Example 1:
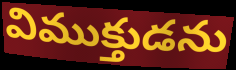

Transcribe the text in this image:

విముక్తుడను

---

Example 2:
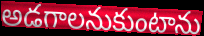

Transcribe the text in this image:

అడగాలనుకుంటాను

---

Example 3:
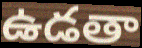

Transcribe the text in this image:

ఉడతా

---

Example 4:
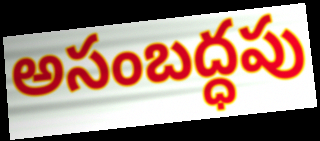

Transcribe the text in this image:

అసంబద్ధపు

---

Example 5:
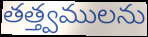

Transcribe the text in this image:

తత్త్వములను